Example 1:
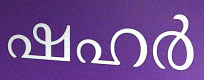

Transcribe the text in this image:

ഷഹർ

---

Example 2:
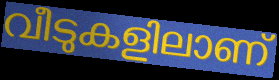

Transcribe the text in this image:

വീടുകളിലാണ്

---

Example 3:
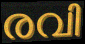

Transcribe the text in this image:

രവി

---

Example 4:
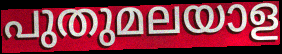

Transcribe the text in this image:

പുതുമലയാള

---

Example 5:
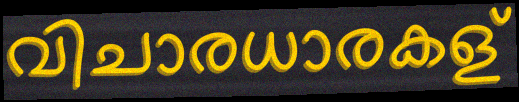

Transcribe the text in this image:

വിചാരധാരകള്